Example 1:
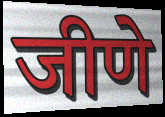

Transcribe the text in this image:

जीणे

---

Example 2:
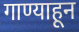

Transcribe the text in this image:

गाण्याहून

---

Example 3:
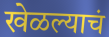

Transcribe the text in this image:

खेळल्याचं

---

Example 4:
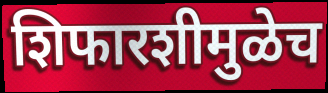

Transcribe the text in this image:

शिफारशीमुळेच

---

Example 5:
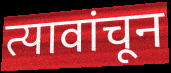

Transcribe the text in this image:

त्यावांचून